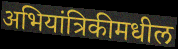
अभियांत्रिकीमधील